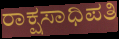
ರಾಕ್ಷಸಾಧಿಪತಿ